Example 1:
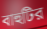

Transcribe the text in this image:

বাহুটির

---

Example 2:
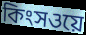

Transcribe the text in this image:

কিংসওয়ে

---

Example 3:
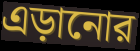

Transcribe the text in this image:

এড়ানোর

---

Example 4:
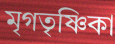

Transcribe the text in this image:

মৃগতৃষ্ণিকা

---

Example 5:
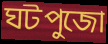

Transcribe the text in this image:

ঘটপুজো